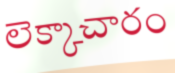
లెక్కాచారం